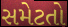
સમેટતો